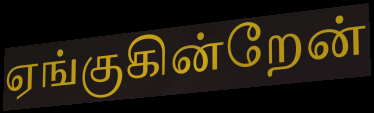
ஏங்குகின்றேன்